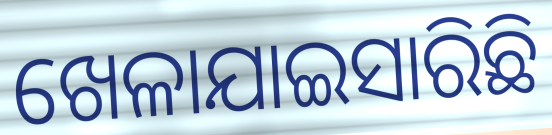
ଖେଳାଯାଇସାରିଛି